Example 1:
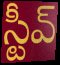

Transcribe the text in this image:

స్టీవ్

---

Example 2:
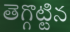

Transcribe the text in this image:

తెగ్గొట్టిన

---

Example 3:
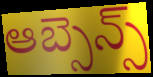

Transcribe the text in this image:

ఆబ్సెన్స్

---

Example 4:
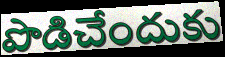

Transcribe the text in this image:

పొడిచేందుకు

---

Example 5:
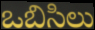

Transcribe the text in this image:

ఒబిసిలు